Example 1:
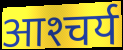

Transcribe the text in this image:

आश्चर्य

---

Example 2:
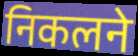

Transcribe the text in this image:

निकलने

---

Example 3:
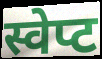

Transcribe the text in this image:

स्वेप्ट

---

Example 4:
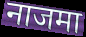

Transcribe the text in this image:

नाजमा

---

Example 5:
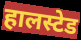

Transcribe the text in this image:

हालस्टेड